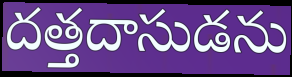
దత్తదాసుడను